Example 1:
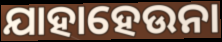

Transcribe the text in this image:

ଯାହାହେଉନା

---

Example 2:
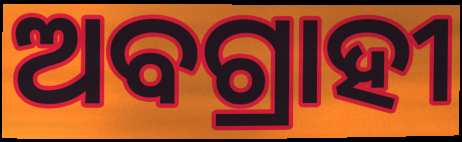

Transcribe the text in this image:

ଅବଗ୍ରାହୀ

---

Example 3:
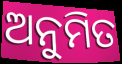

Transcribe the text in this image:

ଅନୁମିତ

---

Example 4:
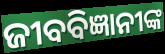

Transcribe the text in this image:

ଜୀବବିଜ୍ଞାନୀଙ୍କ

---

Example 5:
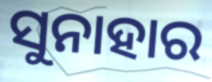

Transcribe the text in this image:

ସୁନାହାର